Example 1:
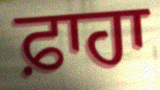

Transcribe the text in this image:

ਫ਼ਾਹਾ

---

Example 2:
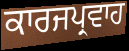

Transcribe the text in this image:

ਕਾਰਜਪ੍ਰਵਾਹ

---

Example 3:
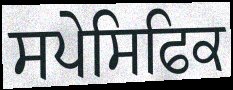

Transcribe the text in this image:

ਸਪੇਸਿਫਿਕ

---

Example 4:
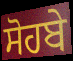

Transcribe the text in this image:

ਸੋਹਬੇ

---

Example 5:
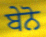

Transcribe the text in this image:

ਬੇਨੋ